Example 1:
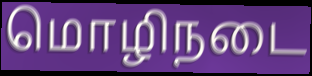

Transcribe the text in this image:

மொழிநடை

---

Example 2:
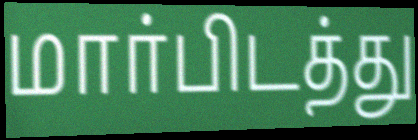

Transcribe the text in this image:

மார்பிடத்து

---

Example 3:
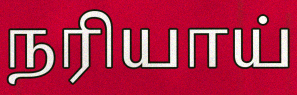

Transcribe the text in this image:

நரியாய்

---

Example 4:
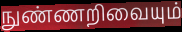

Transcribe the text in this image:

நுண்ணறிவையும்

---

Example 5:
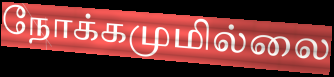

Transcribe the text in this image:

நோக்கமுமில்லை